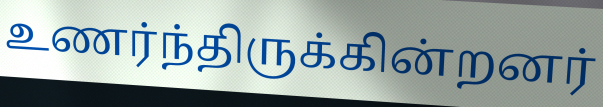
உணர்ந்திருக்கின்றனர்